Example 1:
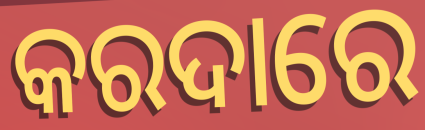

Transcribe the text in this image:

କରଦାରେ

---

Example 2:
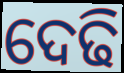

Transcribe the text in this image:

ଦେଢି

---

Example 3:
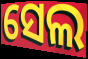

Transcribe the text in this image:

ସେଲ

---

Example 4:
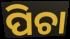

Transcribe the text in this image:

ପିଚା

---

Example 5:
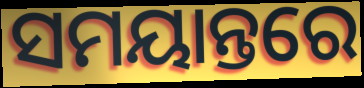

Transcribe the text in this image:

ସମୟାନ୍ତରେ